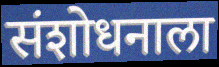
संशोधनाला